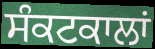
ਸੰਕਟਕਾਲਾਂ